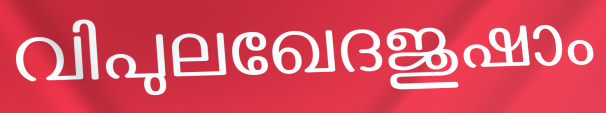
വിപുലഖേദജുഷാം